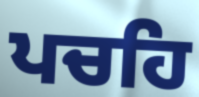
ਪਚਹਿ